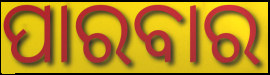
ପାରବାର